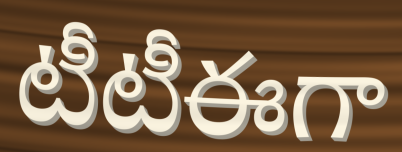
టీటీఈగా